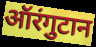
ऑरंगुटान